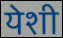
येशी